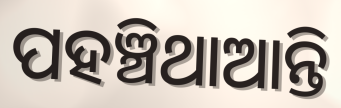
ପହଞ୍ଚିଥାଆନ୍ତି